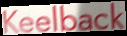
Keelback